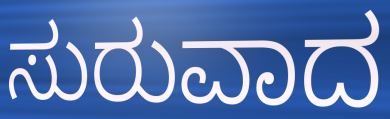
ಸುರುವಾದ